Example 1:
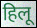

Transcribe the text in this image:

हिलू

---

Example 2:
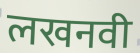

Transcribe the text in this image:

लखनवी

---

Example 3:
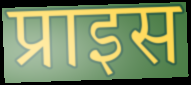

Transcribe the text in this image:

प्राइस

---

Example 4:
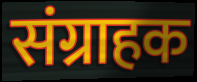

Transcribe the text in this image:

संग्राहक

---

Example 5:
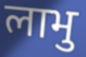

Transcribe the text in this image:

लाभु